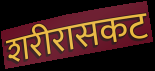
शरीरासकट